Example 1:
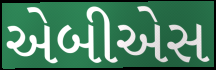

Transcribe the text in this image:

એબીએસ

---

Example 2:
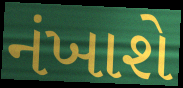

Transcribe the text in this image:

નંખાશે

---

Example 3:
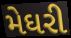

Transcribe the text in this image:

મેઘરી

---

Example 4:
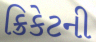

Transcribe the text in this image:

ક્રિકેટની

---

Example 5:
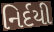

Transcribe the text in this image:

નિર્દયી